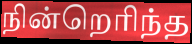
நின்றெரிந்த